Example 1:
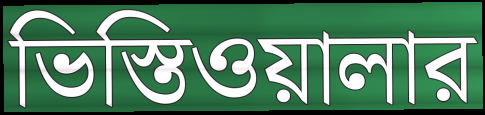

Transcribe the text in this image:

ভিস্তিওয়ালার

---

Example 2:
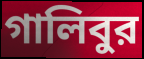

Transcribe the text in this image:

গালিবুর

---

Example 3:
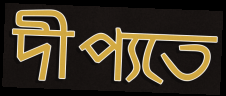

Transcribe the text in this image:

দীপ্যতে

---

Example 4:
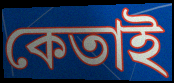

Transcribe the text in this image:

কেতাই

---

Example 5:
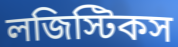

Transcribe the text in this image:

লজিস্টিকস